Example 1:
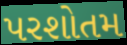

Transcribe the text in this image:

પરશોતમ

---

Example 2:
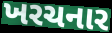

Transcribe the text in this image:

ખરચનાર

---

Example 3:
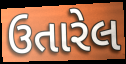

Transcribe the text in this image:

ઉતારેલ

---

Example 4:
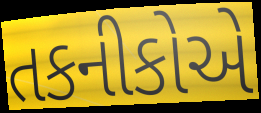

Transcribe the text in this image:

તકનીકોએ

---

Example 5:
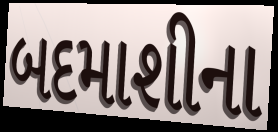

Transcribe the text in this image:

બદમાશીના